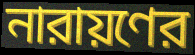
নারায়ণের